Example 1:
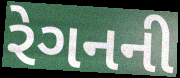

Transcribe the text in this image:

રેગનની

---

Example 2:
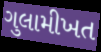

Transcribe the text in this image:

ગુલામીખત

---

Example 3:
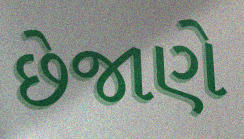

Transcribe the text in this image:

છેજાણે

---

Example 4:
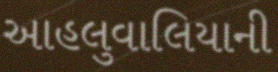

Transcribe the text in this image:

આહલુવાલિયાની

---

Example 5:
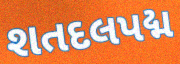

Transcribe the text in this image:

શતદલપદ્મ